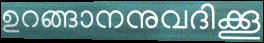
ഉറങ്ങാനനുവദിക്കൂ